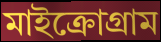
মাইক্রোগ্রাম